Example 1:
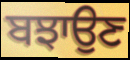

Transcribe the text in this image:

ਬਝਾਉਣ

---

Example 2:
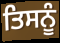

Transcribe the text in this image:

ਤਿਸਨੂੰ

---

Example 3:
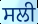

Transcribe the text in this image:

ਸਲੀ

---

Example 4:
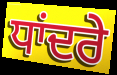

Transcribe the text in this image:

ਧਾਂਦਰੇ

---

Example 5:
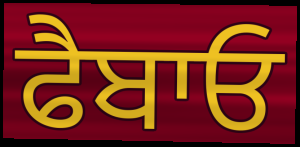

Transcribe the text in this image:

ਫੈਬਾਓ